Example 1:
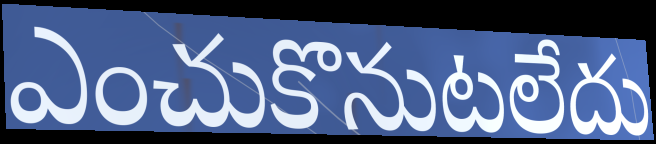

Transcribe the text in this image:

ఎంచుకొనుటలేదు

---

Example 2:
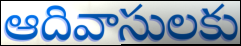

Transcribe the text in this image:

ఆదివాసులకు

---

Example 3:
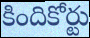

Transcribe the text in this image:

కిందికోర్టు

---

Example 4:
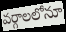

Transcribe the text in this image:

వర్గాలలోనూ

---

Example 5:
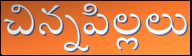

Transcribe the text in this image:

చిన్నపిల్లలు